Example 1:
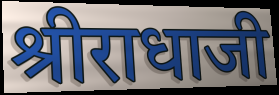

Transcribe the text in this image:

श्रीराधाजी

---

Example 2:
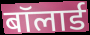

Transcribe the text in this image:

बॉलार्ड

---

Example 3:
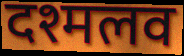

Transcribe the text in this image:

दश्मलव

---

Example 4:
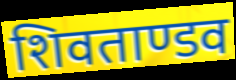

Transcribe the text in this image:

शिवताण्डव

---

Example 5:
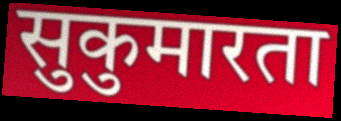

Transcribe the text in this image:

सुकुमारता